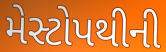
મેસ્ટોપથીની